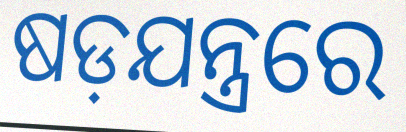
ଷଡ଼ଯନ୍ତ୍ରରେ